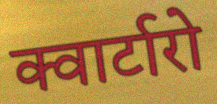
क्वार्टारो